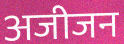
अजीजन